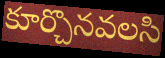
కూర్చొనవలసి